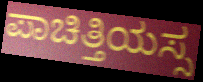
ಪಾಚಿತ್ತಿಯಸ್ಸ